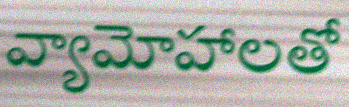
వ్యామోహాలతో